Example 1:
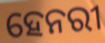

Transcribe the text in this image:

ହେନରୀ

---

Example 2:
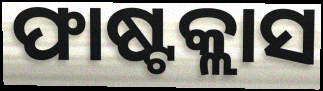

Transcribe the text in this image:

ଫାଷ୍ଟକ୍ଲାସ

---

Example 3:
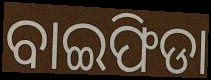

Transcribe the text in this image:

ବାଇଫିଡା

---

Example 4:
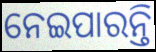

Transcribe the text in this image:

ନେଇପାରନ୍ତି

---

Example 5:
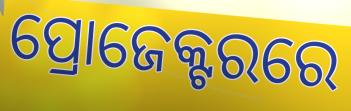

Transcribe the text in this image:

ପ୍ରୋଜେକ୍ଟରରେ